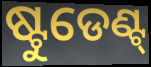
ଷ୍ଟୁଡେଣ୍ଟ୍